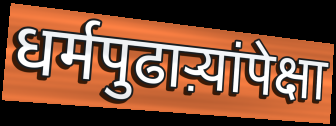
धर्मपुढाऱ्‍यांपेक्षा